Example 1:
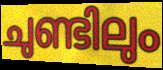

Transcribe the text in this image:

ചുണ്ടിലും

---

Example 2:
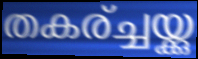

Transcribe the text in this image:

തകര്ച്ചയ്ക്കു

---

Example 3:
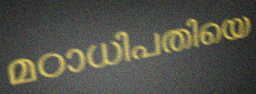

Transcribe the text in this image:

മഠാധിപതിയെ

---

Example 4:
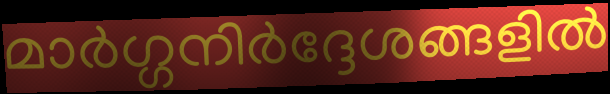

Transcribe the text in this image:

മാർഗ്ഗനിർദ്ദേശങ്ങളിൽ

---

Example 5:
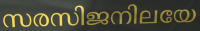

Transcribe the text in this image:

സരസിജനിലയേ